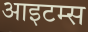
आइटम्‍स